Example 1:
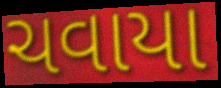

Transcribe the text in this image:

ચવાયા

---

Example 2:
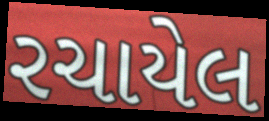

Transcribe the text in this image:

રચાયેલ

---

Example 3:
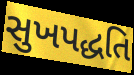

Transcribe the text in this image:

સુખપદ્ધતિ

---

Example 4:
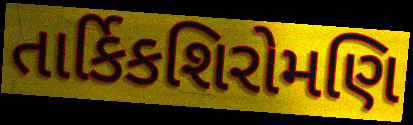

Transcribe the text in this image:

તાર્કિકશિરોમણિ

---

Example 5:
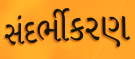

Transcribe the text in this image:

સંદર્ભીકરણ